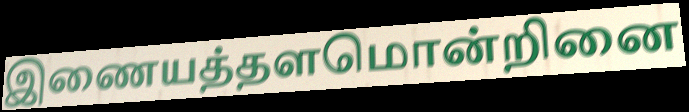
இணையத்தளமொன்றினை